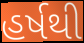
હર્ષથી